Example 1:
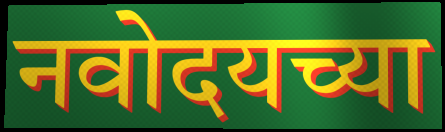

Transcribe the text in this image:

नवोदयच्या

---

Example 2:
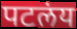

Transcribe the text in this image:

पटलंय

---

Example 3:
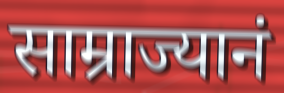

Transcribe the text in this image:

साम्राज्यानं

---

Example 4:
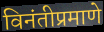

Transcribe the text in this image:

विनंतीप्रमाणे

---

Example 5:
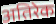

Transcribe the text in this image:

अतिरेक